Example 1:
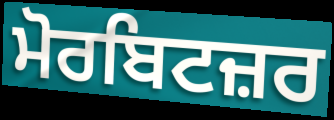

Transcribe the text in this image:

ਮੋਰਬਿਟਜ਼ਰ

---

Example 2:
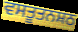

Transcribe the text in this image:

ਵਸਤੂਤਨਸ਼ਠ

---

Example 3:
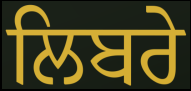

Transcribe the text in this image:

ਲਿਬਰੇ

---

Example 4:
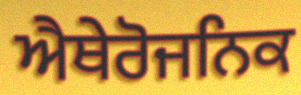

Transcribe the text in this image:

ਐਥੇਰੋਜਨਿਕ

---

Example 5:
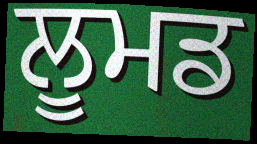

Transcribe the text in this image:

ਲੂਮਡ